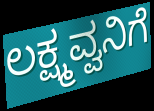
ಲಕ್ಷ್ಮವ್ವನಿಗೆ